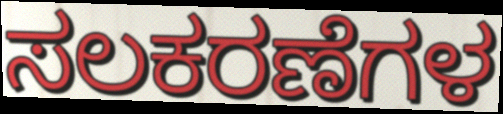
ಸಲಕರಣೆಗಳ